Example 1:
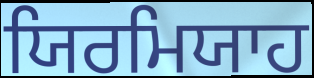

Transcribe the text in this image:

ਯਿਰਮਿਯਾਹ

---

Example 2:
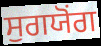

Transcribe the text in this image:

ਸੁਗਯੋਂਗ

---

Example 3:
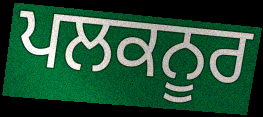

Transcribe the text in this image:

ਪਲਕਨੂਰ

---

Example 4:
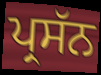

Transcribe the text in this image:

ਪ੍ਰਸੱਨ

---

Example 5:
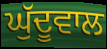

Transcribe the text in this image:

ਘੁੱਦੂਵਾਲ